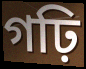
গঢ়ি